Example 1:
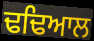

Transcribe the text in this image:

ਢਢਿਆਲ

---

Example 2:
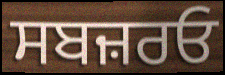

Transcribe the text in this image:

ਸਬਜ਼ਰਓ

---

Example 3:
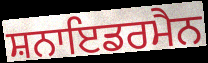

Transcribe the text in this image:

ਸ਼ਨਾਇਡਰਮੈਨ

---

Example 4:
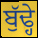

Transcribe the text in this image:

ਬੁੱਢ੍ਹੇ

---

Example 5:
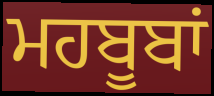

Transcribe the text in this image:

ਮਹਬੂਬਾਂ